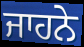
ਜਾਹਨੇ